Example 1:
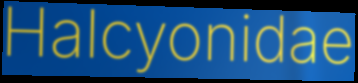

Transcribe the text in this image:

Halcyonidae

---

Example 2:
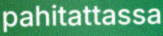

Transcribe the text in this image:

pahitattassa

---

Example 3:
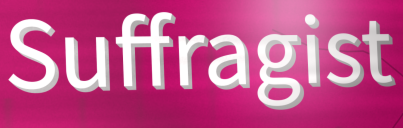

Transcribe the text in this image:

Suffragist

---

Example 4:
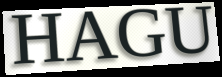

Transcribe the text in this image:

HAGU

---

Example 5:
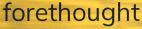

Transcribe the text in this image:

forethought